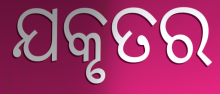
ଯକୃତର